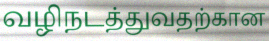
வழிநடத்துவதற்கான